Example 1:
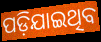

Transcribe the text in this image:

ପଡ଼ିଯାଇଥିବ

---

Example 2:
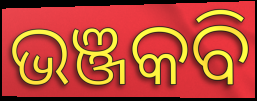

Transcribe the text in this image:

ଭଞ୍ଜକବି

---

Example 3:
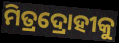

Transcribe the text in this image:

ମିତ୍ରଦ୍ରୋହୀକୁ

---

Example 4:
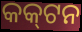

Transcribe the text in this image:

କକ୍‌ଟନ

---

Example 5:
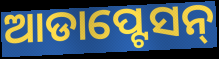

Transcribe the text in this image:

ଆଡାପ୍ଟେସନ୍